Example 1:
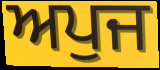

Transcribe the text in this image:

ਅਪੁਜ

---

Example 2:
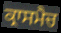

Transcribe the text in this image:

ਕ੍ਰਾਸਮੈਚ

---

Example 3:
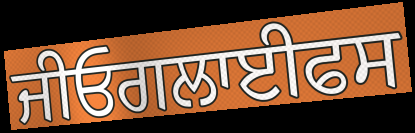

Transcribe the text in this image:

ਜੀਓਗਲਾਈਫਸ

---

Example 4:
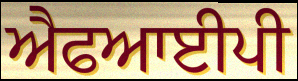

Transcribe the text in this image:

ਐਫਆਈਪੀ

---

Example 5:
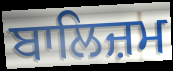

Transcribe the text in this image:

ਬਾਲਿਜ਼ਮ